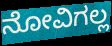
ನೋವಿಗಲ್ಲ